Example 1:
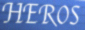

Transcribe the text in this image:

HEROS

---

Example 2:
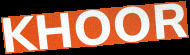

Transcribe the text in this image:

KHOOR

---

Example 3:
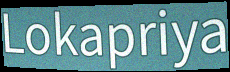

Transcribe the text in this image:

Lokapriya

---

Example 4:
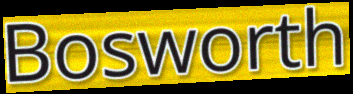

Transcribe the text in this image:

Bosworth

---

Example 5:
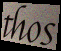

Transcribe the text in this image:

thos